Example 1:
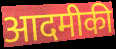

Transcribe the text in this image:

आदमीकी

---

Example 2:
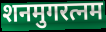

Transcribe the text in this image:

शनमुगरत्नम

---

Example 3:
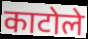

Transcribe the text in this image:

काटोले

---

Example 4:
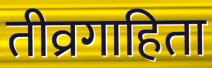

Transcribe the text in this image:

तीव्रगाहिता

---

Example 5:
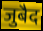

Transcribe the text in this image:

जुबैद